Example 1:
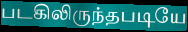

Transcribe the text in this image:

படகிலிருந்தபடியே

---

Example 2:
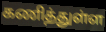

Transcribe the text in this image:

கணித்துள்ள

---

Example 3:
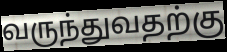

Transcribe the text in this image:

வருந்துவதற்கு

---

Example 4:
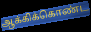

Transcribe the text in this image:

ஆக்கிக்கொண்ட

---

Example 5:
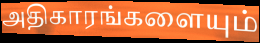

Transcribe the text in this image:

அதிகாரங்களையும்